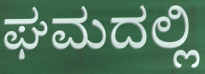
ಘಮದಲ್ಲಿ